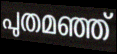
പുതമഞ്ഞ്